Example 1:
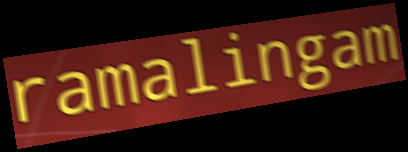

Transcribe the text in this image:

ramalingam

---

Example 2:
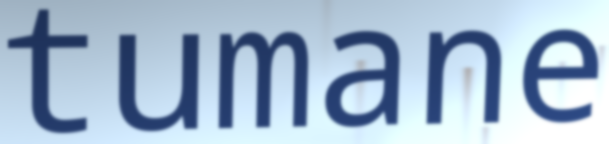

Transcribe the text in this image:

tumane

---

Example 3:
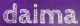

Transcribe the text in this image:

daima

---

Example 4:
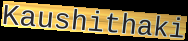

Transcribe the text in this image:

Kaushithaki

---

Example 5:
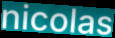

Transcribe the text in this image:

nicolas